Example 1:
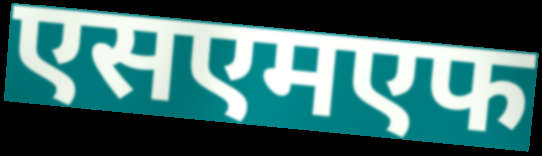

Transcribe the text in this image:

एसएमएफ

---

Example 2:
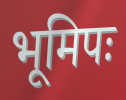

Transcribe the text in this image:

भूमिपः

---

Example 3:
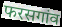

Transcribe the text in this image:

फरसगांव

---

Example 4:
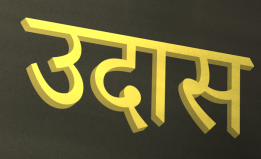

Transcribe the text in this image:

उदास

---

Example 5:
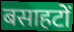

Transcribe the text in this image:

बसाहटों